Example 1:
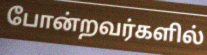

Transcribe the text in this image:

போன்றவர்களில்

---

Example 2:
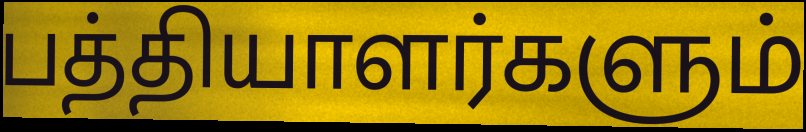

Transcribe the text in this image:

பத்தியாளர்களும்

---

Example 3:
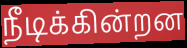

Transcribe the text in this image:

நீடிக்கின்றன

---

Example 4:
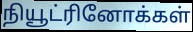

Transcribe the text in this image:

நியூட்ரினோக்கள்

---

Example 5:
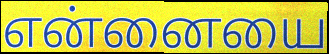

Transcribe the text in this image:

என்னையை